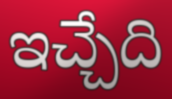
ఇచ్చేది